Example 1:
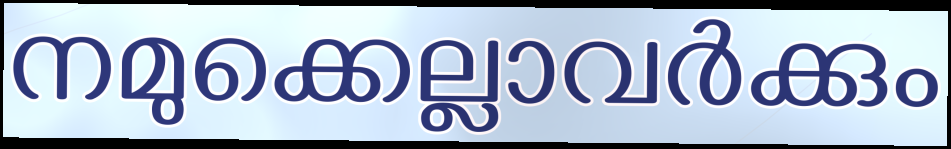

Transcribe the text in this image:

നമുക്കെല്ലാവർക്കും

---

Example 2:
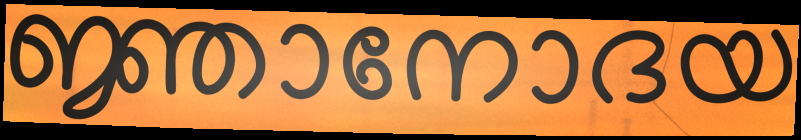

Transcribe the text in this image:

ജ്ഞാനോദയ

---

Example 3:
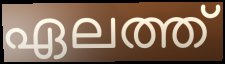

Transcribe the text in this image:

ഏലത്ത്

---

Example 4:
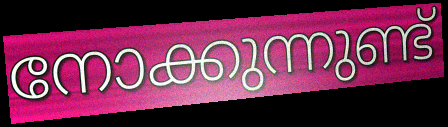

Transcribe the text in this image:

നോക്കുന്നുണ്ട്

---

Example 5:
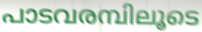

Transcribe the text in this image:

പാടവരമ്പിലൂടെ